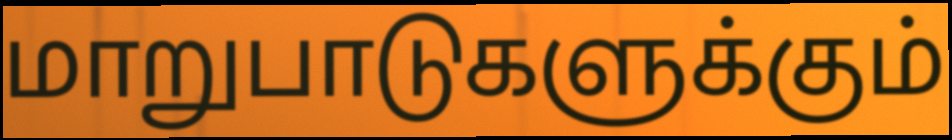
மாறுபாடுகளுக்கும்